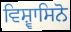
ਵਿਸ਼੍ਵਾਸਿਨੋ